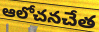
ఆలోచనచేత